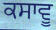
ਕਸਾਵੂ